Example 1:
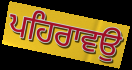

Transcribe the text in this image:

ਪਹਿਰਾਵਉ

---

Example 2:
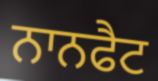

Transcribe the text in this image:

ਨਾਨਫੈਟ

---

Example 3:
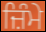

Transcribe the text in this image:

ਜ਼ਿੰਮੇ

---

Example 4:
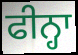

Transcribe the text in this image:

ਫੀਨ੍ਹਾ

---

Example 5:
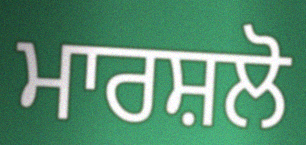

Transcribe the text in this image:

ਮਾਰਸ਼ਲੋ